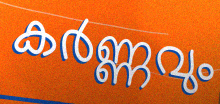
കർണ്ണവും